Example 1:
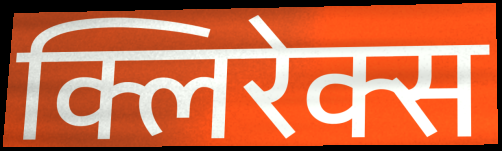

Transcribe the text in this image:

क्लिरेक्स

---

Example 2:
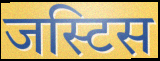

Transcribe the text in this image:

जस्‍टिस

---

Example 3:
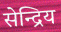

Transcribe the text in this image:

सेन्द्रिय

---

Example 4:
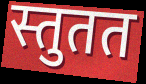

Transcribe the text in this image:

स्तुतत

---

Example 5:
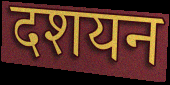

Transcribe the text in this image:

दशयन